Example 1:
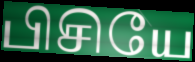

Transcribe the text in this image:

பிசியே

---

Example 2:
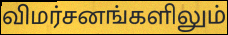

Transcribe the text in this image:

விமர்சனங்களிலும்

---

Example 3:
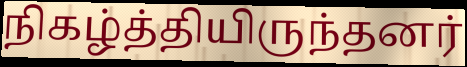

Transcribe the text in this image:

நிகழ்த்தியிருந்தனர்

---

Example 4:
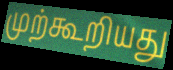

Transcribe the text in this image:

முற்கூறியது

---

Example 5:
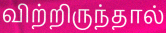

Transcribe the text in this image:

விற்றிருந்தால்